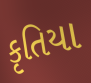
કૃતિયા